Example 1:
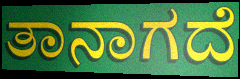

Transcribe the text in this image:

ತಾನಾಗದೆ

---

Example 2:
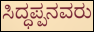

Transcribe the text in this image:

ಸಿದ್ಧಪ್ಪನವರು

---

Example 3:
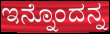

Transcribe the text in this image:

ಇನ್ನೊಂದನ್ನ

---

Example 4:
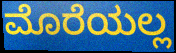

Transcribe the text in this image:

ಮೊರೆಯಲ್ಲ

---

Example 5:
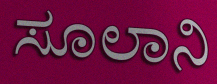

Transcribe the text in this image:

ಸೂಲಾನಿ